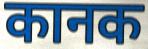
कानक